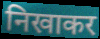
निखाकर